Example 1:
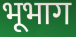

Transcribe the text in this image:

भूभाग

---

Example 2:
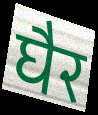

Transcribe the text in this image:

घैर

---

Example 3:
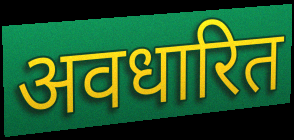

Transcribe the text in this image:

अवधारित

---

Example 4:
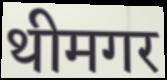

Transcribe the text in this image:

थीमगर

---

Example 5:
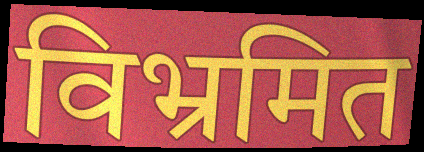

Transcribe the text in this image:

विभ्रमित